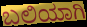
ಬಲಿಯಾಗಿ